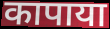
कापाया